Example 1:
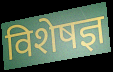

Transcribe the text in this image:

विशेषज्ञ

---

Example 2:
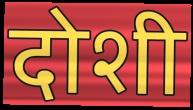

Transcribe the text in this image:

दोशी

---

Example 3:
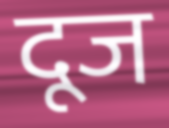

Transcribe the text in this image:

दूज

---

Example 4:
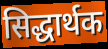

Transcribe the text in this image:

सिद्धार्थक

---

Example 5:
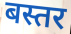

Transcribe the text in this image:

बस्तर